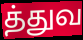
த்துவ